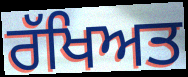
ਰੱਖਿਅਤ